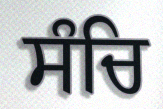
ਸੰਚਿ